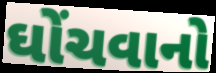
ઘોંચવાનો